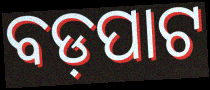
ବଡ଼ପାଟ